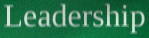
Leadership